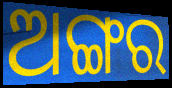
ଅଙ୍ଗର